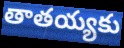
తాతయ్యకు